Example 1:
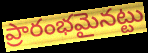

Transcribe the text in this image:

ప్రారంభమైనట్టు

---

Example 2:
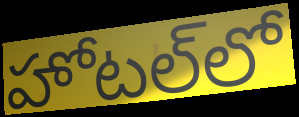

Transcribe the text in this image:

హోటల్‌లో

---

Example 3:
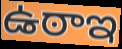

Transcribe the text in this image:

ఉఠాఇ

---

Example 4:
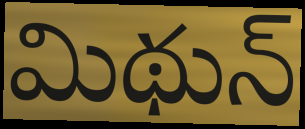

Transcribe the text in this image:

మిథున్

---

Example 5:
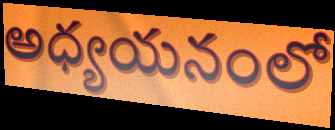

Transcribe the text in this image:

అధ్యయనంలో